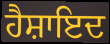
ਹੈਸ਼ਾਇਦ